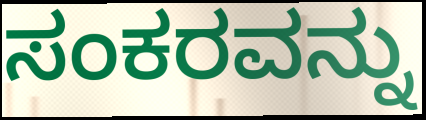
ಸಂಕರವನ್ನು